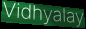
Vidhyalay